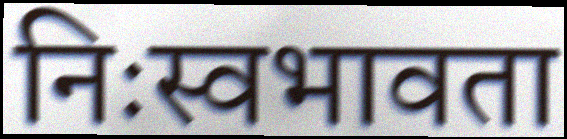
निःस्वभावता